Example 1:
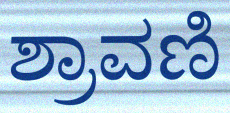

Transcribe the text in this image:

ಶ್ರಾವಣಿ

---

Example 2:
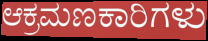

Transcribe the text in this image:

ಆಕ್ರಮಣಕಾರಿಗಳು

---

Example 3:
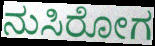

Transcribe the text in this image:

ನುಸಿರೋಗ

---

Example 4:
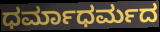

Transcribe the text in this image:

ಧರ್ಮಾಧರ್ಮದ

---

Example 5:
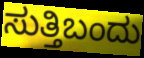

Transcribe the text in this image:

ಸುತ್ತಿಬಂದು